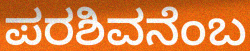
ಪರಶಿವನೆಂಬ